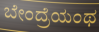
ಬೇಂದ್ರೆಯಂಥ